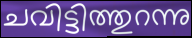
ചവിട്ടിത്തുറന്നു